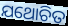
ଯଥୋଚିତ